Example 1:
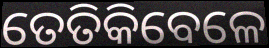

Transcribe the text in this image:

ତେତିକିବେଳେ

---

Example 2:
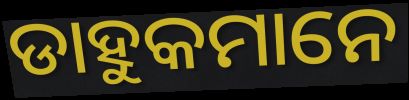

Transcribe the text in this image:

ଡାହୁକମାନେ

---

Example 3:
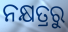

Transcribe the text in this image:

ନକ୍ଷତ୍ରରୁ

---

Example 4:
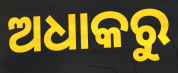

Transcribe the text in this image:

ଅଧାକରୁ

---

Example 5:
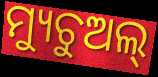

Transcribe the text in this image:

ମ୍ୟୁଚୁଅଲ୍